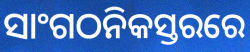
ସାଂଗଠନିକସ୍ତରରେ